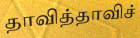
தாவித்தாவிச்